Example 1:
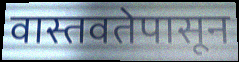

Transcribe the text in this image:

वास्तवतेपासून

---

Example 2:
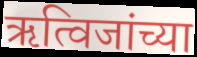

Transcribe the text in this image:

ऋत्विजांच्या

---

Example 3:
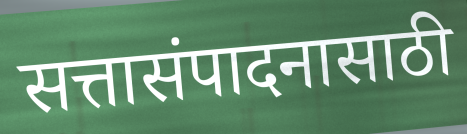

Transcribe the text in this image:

सत्तासंपादनासाठी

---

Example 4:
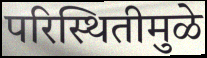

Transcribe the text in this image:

परिस्थितीमुळे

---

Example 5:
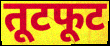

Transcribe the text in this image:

तूटफूट